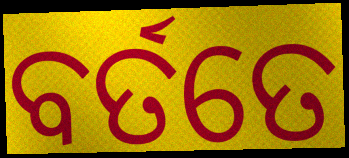
ବର୍ତତେ